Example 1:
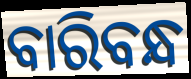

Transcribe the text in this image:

ବାରିବନ୍ଧ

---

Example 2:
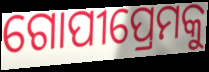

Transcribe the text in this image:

ଗୋପୀପ୍ରେମକୁ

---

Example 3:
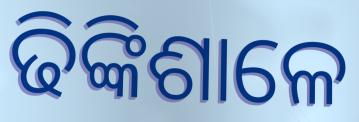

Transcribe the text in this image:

ଢିଙ୍କିଶାଳେ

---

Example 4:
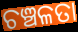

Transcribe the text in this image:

ଚଞ୍ଚଳତା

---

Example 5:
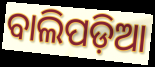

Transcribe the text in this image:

ବାଲିପଡ଼ିଆ